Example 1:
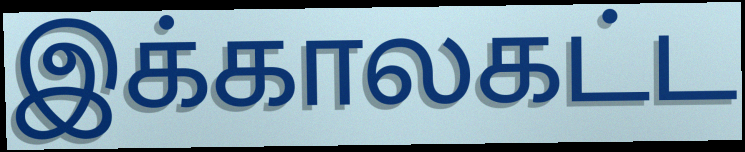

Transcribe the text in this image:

இக்காலகட்ட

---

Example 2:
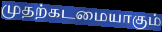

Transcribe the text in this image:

முதற்கடமையாகும்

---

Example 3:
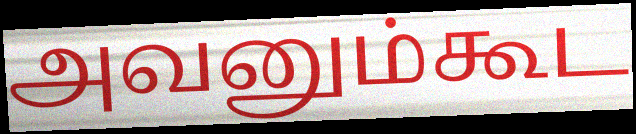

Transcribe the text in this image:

அவனும்கூட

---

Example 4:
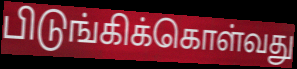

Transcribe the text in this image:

பிடுங்கிக்கொள்வது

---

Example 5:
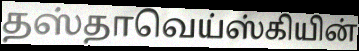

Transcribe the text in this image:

தஸ்தாவெய்ஸ்கியின்